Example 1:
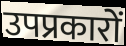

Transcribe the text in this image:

उपप्रकारों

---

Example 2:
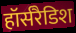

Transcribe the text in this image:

हॉर्सरैडिश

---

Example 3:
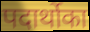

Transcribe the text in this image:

पदार्थोका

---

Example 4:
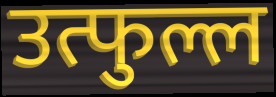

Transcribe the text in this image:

उत्फुल्ल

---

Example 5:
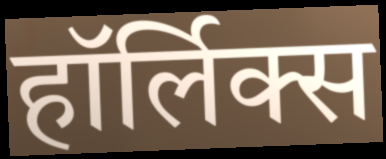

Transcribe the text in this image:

हॉर्लिक्‍स